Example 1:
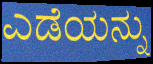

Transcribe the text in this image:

ಎಡೆಯನ್ನು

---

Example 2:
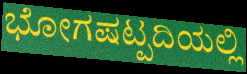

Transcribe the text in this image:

ಭೋಗಷಟ್ಪದಿಯಲ್ಲಿ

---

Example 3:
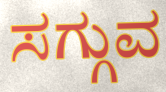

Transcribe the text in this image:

ಸಗ್ಗುವ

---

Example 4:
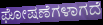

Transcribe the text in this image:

ಘೋಷಣೆಗಳಾಗದೆ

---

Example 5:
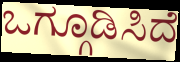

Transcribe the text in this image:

ಒಗ್ಗೂಡಿಸಿದೆ